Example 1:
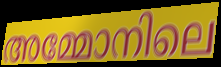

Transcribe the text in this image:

അമ്മോനിലെ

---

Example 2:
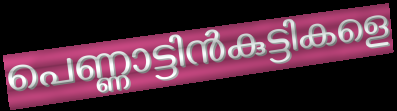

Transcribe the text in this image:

പെണ്ണാട്ടിൻകുട്ടികളെ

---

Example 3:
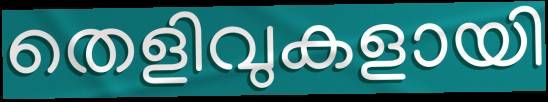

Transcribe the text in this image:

തെളിവുകളായി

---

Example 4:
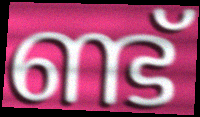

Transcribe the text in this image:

ണ്ട്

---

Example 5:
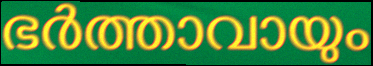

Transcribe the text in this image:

ഭർത്താവായും